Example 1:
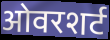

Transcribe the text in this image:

ओवरशर्ट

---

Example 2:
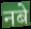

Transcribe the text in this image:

नबे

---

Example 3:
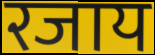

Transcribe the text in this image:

रजाय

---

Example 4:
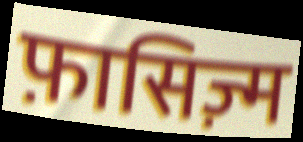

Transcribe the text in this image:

फ़ासिज़्म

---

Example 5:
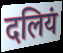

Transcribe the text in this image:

दलियं